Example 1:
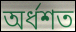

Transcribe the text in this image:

অর্ধশত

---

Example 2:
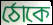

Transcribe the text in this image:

ঠোকে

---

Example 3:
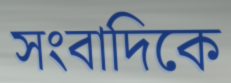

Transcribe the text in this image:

সংবাদিকে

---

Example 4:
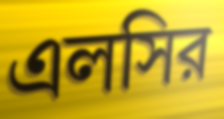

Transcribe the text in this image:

এলসির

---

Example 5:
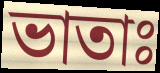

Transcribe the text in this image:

ভাতাঃ